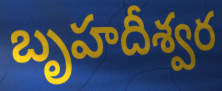
బృహదీశ్వర